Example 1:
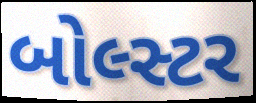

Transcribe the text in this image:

બોલ્સ્ટર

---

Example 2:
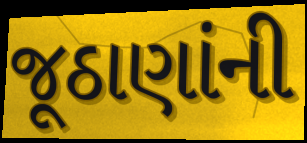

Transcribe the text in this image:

જૂઠાણાંની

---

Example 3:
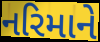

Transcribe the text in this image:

નરિમાને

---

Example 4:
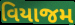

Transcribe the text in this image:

વિયાજમ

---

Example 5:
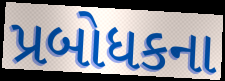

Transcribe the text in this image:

પ્રબોધકના